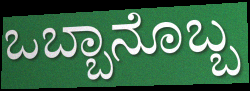
ಒಬ್ಬಾನೊಬ್ಬ